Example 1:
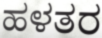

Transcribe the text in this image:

ಹಳತರ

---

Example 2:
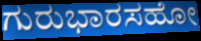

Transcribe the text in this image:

ಗುರುಭಾರಸಹೋ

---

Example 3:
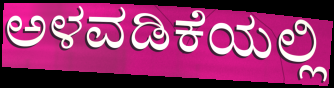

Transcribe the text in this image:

ಅಳವಡಿಕೆಯಲ್ಲಿ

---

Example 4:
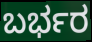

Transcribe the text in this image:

ಬರ್ಭರ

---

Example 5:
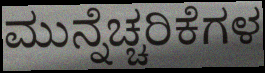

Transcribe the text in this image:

ಮುನ್ನೆಚ್ಚರಿಕೆಗಳ